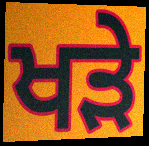
ਖਡ਼ੇ